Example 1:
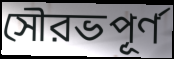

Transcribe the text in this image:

সৌরভপূর্ণ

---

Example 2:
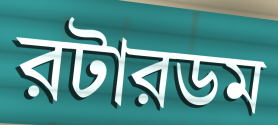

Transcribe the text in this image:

রটারডম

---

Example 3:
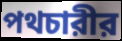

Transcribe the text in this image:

পথচারীর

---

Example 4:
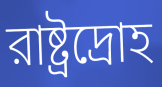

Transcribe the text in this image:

রাষ্ট্রদ্রোহ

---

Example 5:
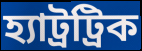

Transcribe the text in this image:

হ্যাট্রট্রিক